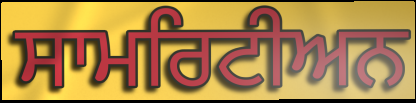
ਸਾਮਰਿਟੀਅਨ